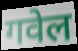
गवेल